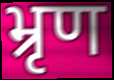
भ्रृण